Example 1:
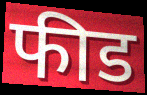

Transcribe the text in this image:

फीड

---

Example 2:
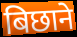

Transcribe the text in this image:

बिछाने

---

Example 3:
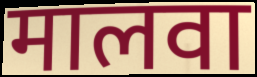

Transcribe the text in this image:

मालवा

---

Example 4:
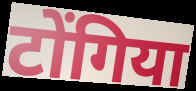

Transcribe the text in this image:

टोंगिया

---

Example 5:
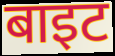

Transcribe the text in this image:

बाइट